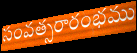
సంవత్సరారంభము